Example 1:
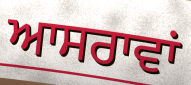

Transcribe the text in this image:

ਆਸਰਾਵਾਂ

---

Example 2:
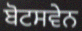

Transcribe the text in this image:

ਬੋਟਸਵੇਨ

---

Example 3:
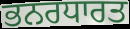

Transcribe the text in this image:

ਭਨਰਧਾਰਤ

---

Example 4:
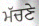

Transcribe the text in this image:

ਮੱਚਣੇ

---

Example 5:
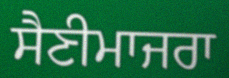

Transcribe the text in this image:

ਸੈਣੀਮਾਜਰਾ